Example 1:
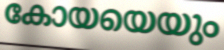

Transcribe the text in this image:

കോയയെയും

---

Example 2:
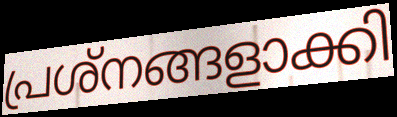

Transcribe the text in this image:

പ്രശ്നങ്ങളാക്കി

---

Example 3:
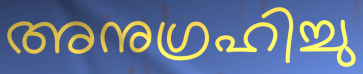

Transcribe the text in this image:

അനുഗ്രഹിച്ചു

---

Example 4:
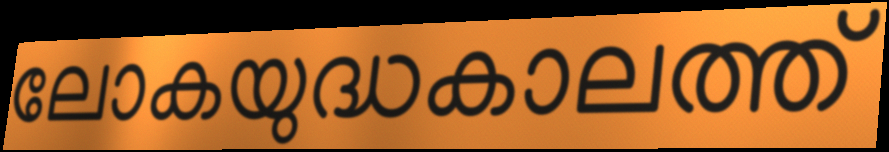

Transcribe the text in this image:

ലോകയുദ്ധകാലത്ത്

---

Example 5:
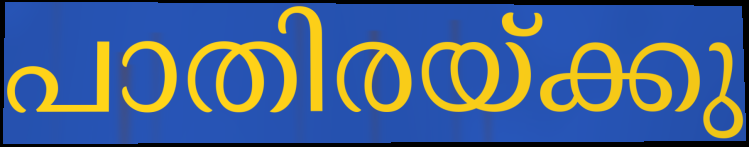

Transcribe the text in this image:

പാതിരയ്ക്കു